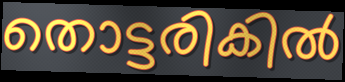
തൊട്ടരികിൽ